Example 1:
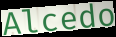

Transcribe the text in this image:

Alcedo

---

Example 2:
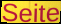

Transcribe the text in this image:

Seite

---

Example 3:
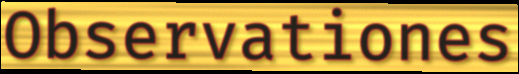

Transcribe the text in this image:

Observationes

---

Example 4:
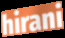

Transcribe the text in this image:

hirani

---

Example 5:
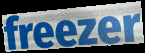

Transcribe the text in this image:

freezer